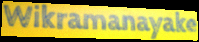
Wikramanayake